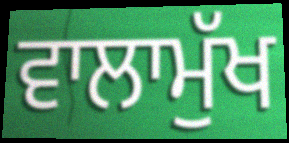
ਵਾਲਾਮੁੱਖ